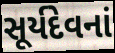
સૂર્યદેવનાં